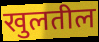
खुलतील